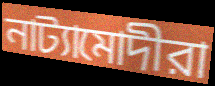
নাট্যামোদীরা